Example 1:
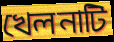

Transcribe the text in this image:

খেলনাটি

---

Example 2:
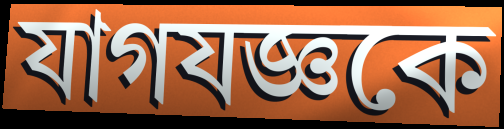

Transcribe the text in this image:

যাগযজ্ঞকে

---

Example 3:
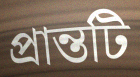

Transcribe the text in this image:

প্রান্তটি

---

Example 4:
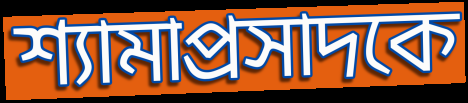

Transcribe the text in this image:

শ্যামাপ্রসাদকে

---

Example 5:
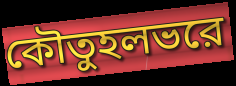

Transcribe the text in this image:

কৌতুহলভরে